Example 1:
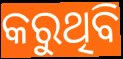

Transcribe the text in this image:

କରୁଥିବି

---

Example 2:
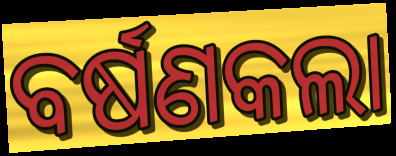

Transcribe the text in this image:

ବର୍ଷଣକଲା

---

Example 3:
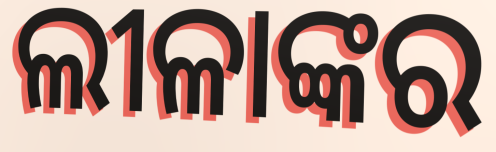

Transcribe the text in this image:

ଲୀଳାଙ୍କର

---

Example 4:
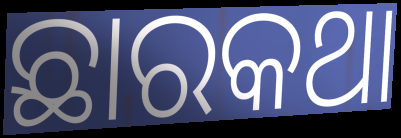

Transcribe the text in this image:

ଛାରକଥା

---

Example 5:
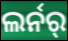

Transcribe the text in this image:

ଲର୍ନର୍